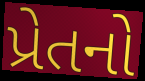
પ્રેતનો